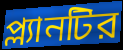
প্ল্যানটির